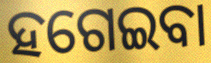
ହଗେଇବା